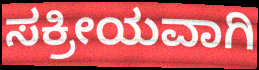
ಸಕ್ರೀಯವಾಗಿ